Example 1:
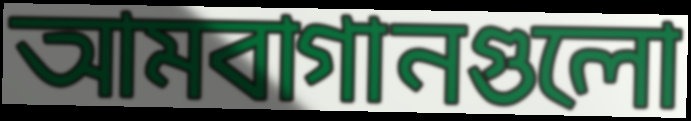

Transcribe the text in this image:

আমবাগানগুলো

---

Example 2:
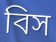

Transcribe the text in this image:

বিস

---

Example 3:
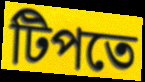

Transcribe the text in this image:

টিপতে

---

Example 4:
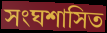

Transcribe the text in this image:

সংঘশাসিত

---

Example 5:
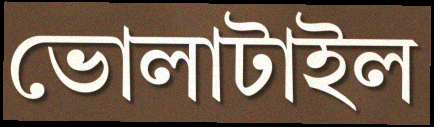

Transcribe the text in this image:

ভোলাটাইল